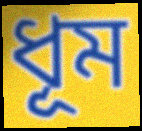
ধূম